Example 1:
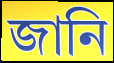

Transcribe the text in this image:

জানি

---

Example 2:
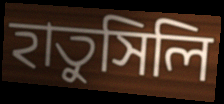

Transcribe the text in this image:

হাতুসিলি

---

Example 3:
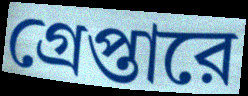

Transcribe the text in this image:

গ্রেপ্তারে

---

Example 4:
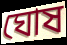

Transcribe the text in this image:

ঘোষ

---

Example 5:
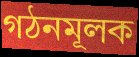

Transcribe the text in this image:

গঠনমূলক